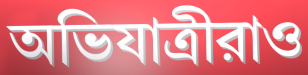
অভিযাত্রীরাও